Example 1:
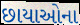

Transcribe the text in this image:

છાયાઓના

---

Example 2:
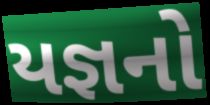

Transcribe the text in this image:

યજ્ઞનો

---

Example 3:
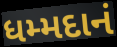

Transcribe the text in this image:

ધમ્મદાનં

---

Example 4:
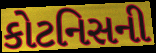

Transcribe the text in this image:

કોટનિસની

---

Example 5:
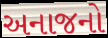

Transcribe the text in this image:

અનાજનો